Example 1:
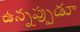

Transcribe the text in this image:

ఉన్నప్పుడూ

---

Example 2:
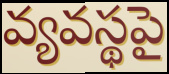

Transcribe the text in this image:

వ్యవస్థపై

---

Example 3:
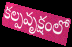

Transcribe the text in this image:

కల్పవృక్షంలో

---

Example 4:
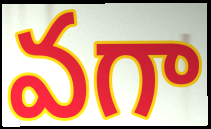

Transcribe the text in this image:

వగా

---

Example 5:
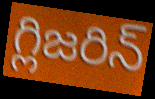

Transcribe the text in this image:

గ్లిజరిన్